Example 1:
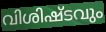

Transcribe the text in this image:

വിശിഷ്ടവും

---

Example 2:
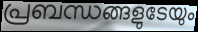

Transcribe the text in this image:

പ്രബന്ധങ്ങളുടേയും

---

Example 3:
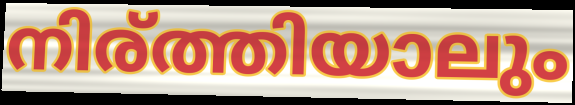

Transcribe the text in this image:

നിര്ത്തിയാലും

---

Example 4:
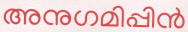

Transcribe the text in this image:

അനുഗമിപ്പിൻ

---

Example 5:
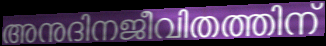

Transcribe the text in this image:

അനുദിനജീവിതത്തിന്